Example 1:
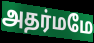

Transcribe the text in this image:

அதர்மமே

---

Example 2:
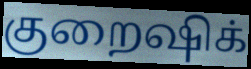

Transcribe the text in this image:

குறைஷிக்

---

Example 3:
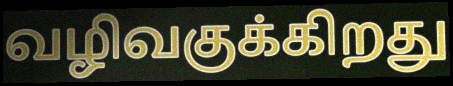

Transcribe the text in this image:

வழிவகுக்கிறது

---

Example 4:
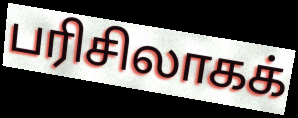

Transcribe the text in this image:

பரிசிலாகக்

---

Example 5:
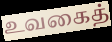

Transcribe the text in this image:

உவகைத்